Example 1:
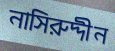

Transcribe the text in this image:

নাসিরুদ্দীন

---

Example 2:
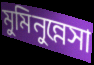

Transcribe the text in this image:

মুমিনুন্নেসা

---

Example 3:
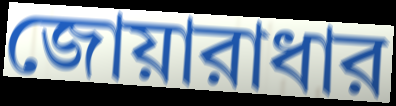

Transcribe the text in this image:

জোয়ারাধার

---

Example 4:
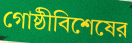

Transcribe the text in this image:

গোষ্ঠীবিশেষের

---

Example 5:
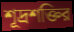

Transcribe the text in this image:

শূদ্রশক্তির